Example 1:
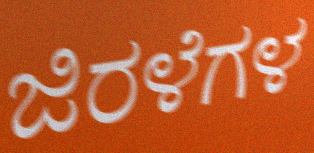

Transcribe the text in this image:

ಜಿರಳೆಗಳ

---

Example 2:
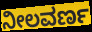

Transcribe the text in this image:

ನೀಲವರ್ಣ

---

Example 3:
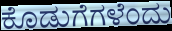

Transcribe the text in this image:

ಕೊಡುಗೆಗಳೆಂದು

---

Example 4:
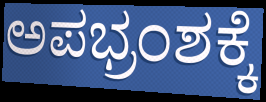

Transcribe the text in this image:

ಅಪಭ್ರಂಶಕ್ಕೆ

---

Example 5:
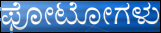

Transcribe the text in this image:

ಫೋಟೋಗಳು